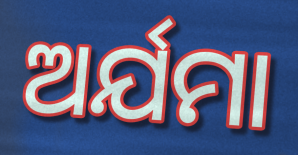
ଅର୍ଯମା